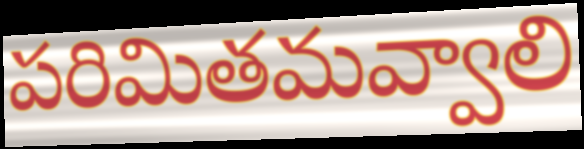
పరిమితమవ్వాలి